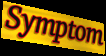
Symptom